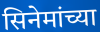
सिनेमांच्या